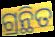
ଗ୍ରନ୍ଥିତ